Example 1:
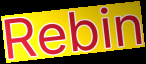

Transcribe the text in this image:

Rebin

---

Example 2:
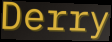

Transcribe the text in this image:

Derry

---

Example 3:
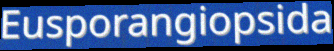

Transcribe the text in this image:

Eusporangiopsida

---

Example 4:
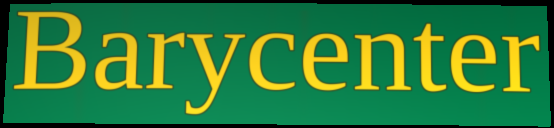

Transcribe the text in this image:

Barycenter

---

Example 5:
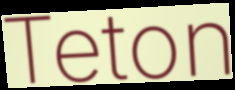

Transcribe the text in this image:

Teton